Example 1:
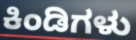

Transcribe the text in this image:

ಕಿಂಡಿಗಳು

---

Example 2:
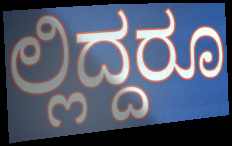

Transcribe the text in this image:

ಲ್ಲಿದ್ದರೂ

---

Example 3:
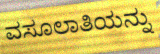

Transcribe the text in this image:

ವಸೂಲಾತಿಯನ್ನು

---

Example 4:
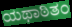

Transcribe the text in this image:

ಯಥಾಠಿತಂ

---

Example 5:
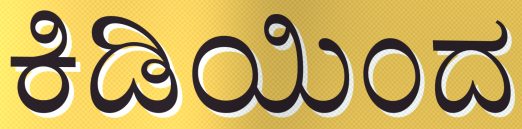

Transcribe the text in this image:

ಕಿಡಿಯಿಂದ